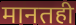
मानतही